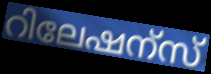
റിലേഷന്സ്